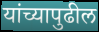
यांच्यापुढील